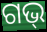
ଗଭ୍